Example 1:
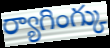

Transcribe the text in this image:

ర్యాగింగ్కు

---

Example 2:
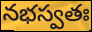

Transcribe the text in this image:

నభస్వతః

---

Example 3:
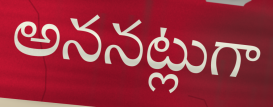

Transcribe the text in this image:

అననట్లుగా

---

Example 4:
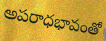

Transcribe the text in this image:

అపరాధభావంతో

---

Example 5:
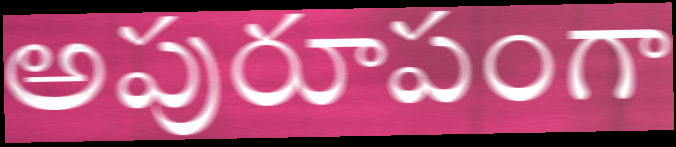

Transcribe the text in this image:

అపురూపంగా